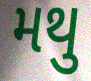
મથુ